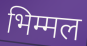
भिम्मल